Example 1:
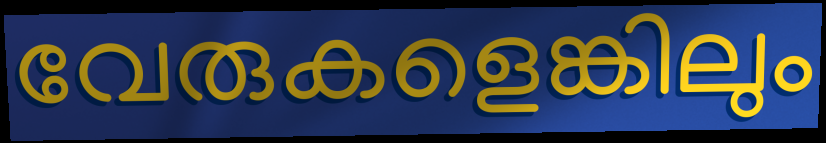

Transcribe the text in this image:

വേരുകളെങ്കിലും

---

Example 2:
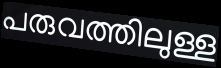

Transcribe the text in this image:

പരുവത്തിലുള്ള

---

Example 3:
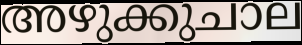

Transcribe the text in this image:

അഴുക്കുചാല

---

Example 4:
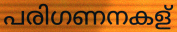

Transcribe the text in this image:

പരിഗണനകള്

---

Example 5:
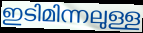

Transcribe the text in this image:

ഇടിമിന്നലുള്ള